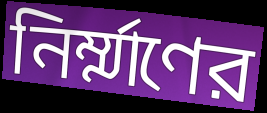
নির্ম্মাণের